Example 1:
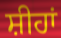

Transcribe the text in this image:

ਸ਼ੀਹਾਂ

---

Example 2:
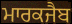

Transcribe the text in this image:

ਮਾਰਕਜੈਬ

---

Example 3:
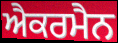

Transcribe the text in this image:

ਐਕਰਮੈਨ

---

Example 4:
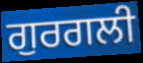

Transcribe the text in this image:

ਗੁਰਗਲੀ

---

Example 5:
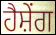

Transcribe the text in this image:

ਹੈਸ਼ੇਂਗ